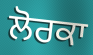
ਲੋਰਕਾ